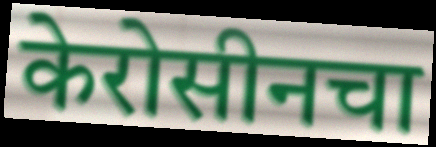
केरोसीनचा